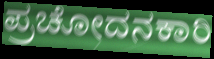
ಪ್ರಚೋದನಕಾರಿ